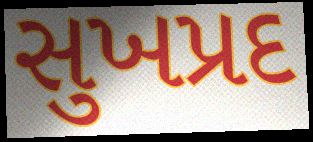
સુખપ્રદ